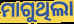
ମାଗୁଥିଲା